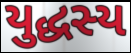
યુદ્ધસ્ય